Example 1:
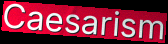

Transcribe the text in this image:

Caesarism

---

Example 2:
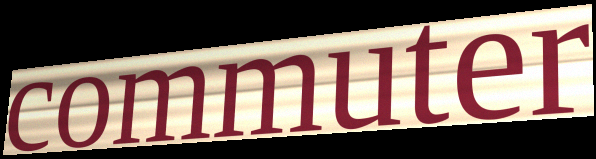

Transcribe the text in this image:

commuter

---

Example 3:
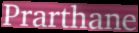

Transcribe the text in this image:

Prarthane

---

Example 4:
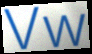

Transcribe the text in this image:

Vw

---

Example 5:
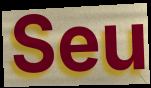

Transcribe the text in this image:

Seu